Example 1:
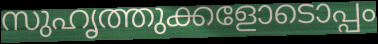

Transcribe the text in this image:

സുഹൃത്തുക്കളോടൊപ്പം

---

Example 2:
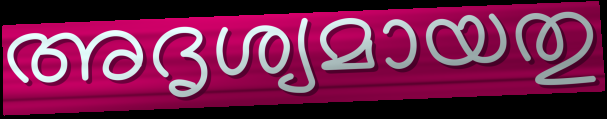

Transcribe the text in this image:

അദൃശ്യമായതു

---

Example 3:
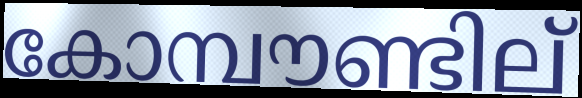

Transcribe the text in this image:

കോമ്പൗണ്ടില്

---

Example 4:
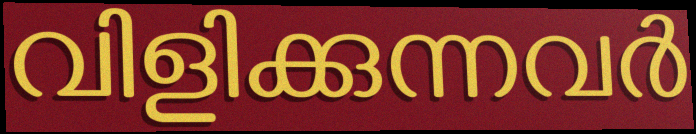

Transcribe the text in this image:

വിളിക്കുന്നവർ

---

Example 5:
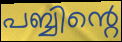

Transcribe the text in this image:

പബ്ബിന്റെ